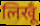
लिखूँ